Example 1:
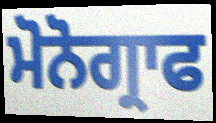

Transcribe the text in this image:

ਮੋਨੋਗ੍ਰਾਫ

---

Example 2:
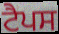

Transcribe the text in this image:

ਟੈਪਸ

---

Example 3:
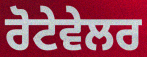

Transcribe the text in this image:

ਰੋਟੇਵੇਲਰ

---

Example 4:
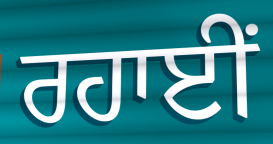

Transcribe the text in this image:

ਰਹਾਈਂ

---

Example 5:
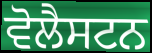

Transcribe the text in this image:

ਵੋਲੈਸਟਨ